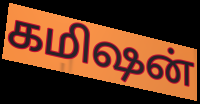
கமிஷன்